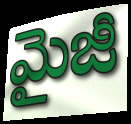
మైజీ